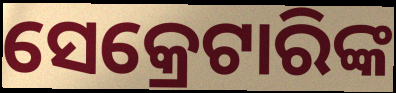
ସେକ୍ରେଟାରିଙ୍କ